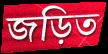
জড়িত